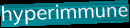
hyperimmune